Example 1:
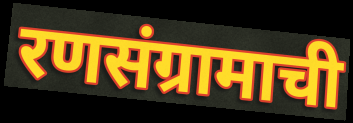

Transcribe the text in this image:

रणसंग्रामाची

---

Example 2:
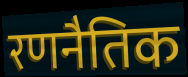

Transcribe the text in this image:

रणनैतिक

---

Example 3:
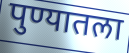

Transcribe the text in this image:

पुण्यातला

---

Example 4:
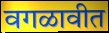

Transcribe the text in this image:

वगळावीत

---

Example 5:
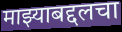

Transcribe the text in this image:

माझ्याबद्दलचा